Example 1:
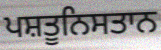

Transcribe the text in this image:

ਪਸ਼ਤੂਨਿਸਤਾਨ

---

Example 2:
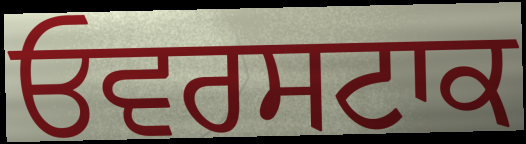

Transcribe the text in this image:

ਓਵਰਸਟਾਕ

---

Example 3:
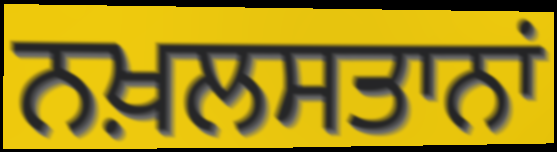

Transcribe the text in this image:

ਨਖ਼ਲਸਤਾਨਾਂ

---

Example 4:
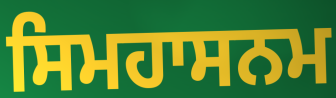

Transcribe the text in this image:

ਸਿਮਹਾਸਨਮ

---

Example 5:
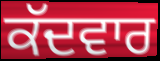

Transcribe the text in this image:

ਕੱਦਵਾਰ